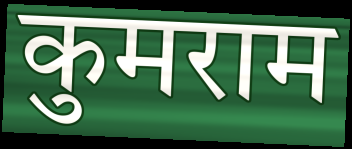
कुमराम